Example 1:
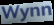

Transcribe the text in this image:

Wynn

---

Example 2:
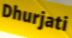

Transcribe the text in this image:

Dhurjati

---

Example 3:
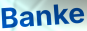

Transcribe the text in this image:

Banke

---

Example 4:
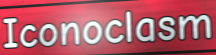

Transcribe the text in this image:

Iconoclasm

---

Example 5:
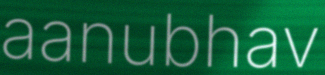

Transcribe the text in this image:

aanubhav